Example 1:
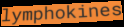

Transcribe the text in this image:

lymphokines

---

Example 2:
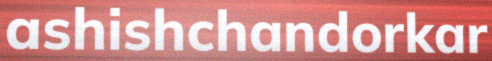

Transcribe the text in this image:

ashishchandorkar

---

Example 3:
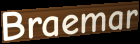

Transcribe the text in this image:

Braemar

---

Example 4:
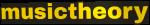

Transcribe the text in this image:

musictheory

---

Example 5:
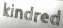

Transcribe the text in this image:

kindred